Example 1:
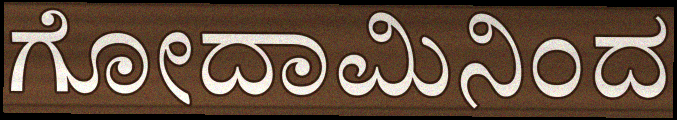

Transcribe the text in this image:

ಗೋದಾಮಿನಿಂದ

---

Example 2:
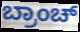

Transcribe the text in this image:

ಬ್ರಾಂಚ್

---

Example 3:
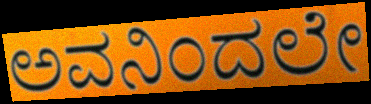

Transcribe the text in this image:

ಅವನಿಂದಲೇ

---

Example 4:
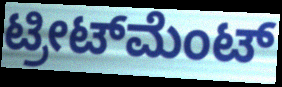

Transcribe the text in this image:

ಟ್ರೀಟ್‌ಮೆಂಟ್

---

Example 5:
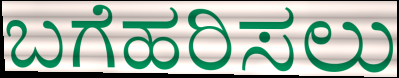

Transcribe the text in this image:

ಬಗೆಹರಿಸಲು